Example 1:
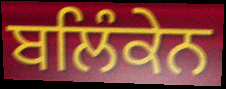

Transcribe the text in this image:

ਬਲਿੰਕੇਨ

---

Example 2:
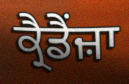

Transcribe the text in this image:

ਕ੍ਰੈਡੈਂਜ਼ਾ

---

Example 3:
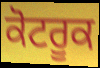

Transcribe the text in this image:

ਕੋਟਰੂਕ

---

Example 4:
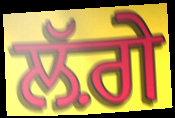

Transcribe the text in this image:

ਲ਼ੱਗੇ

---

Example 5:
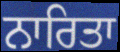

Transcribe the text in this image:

ਨਾਰਿਤਾ